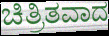
ಚಿತ್ರಿತವಾದ